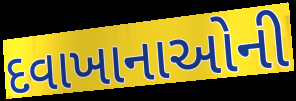
દવાખાનાઓની